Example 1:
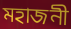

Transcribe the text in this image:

মহাজনী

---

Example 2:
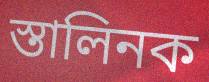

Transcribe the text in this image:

স্তালিনক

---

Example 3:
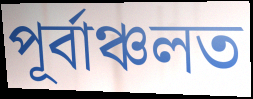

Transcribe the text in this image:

পূৰ্বাঞ্চলত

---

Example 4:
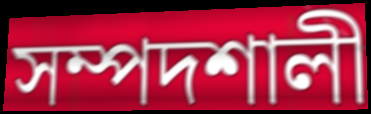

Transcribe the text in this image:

সম্পদশালী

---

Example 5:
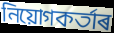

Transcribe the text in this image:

নিয়োগকৰ্তাৰ